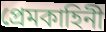
প্রেমকাহিনী